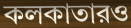
কলকাতারও